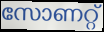
സോണറ്റ്